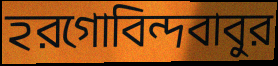
হরগোবিন্দবাবুর